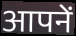
आपनें